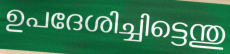
ഉപദേശിച്ചിട്ടെന്തു